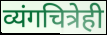
व्यंगचित्रेही